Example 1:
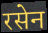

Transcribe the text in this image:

रसेन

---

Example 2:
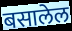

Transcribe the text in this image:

बसालेल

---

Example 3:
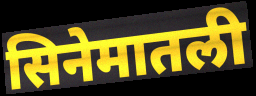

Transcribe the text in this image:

सिनेमातली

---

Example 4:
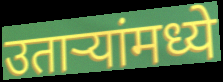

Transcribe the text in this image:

उतार्‍यांमध्ये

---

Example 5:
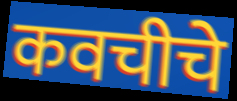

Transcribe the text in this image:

कवचीचे